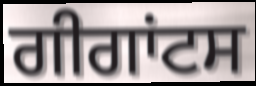
ਗੀਗਾਂਟਸ